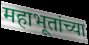
महाभूतांच्या